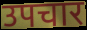
उपचार